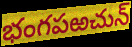
భంగపఱచున్